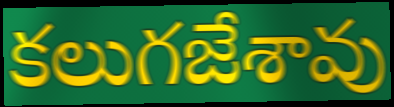
కలుగజేశావు